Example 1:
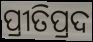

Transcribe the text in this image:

ପ୍ରୀତିପ୍ରଦ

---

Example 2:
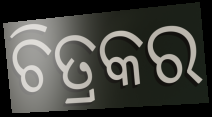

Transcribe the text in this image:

ଚିତ୍ରକର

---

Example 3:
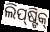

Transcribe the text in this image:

ଲିପ୍‌ଷ୍ଟିକ୍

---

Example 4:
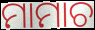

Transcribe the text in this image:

ମାମାଚ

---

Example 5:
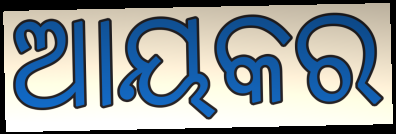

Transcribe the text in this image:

ଆୟକର